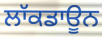
ਲਾੱਕਡਾਊਨ